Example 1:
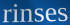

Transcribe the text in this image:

rinses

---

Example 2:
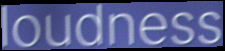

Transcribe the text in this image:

loudness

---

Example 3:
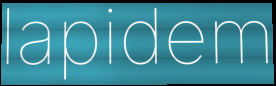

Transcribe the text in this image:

lapidem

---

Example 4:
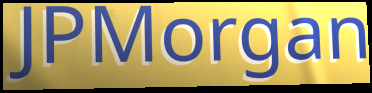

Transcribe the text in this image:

JPMorgan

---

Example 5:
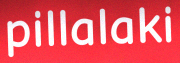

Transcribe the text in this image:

pillalaki